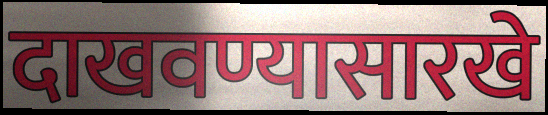
दाखवण्यासारखे